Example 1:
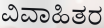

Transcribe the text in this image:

ವಿವಾಹಿತರ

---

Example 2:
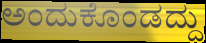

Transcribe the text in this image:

ಅಂದುಕೊಂಡದ್ದು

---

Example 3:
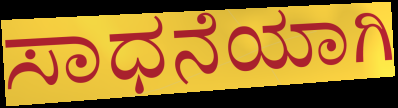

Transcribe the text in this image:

ಸಾಧನೆಯಾಗಿ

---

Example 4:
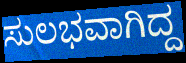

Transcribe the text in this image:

ಸುಲಭವಾಗಿದ್ದ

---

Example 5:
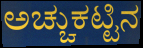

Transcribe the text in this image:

ಅಚ್ಚುಕಟ್ಟಿನ